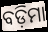
ବଡ଼ିମା